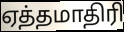
ஏத்தமாதிரி